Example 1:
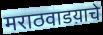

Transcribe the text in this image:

मराठवाडय़ाचे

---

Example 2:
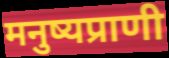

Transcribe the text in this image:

मनुष्यप्राणी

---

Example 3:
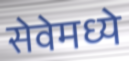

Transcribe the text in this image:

सेवेमध्ये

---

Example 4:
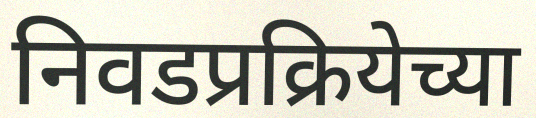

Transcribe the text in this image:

निवडप्रक्रियेच्या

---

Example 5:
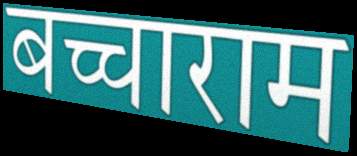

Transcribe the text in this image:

बच्चाराम